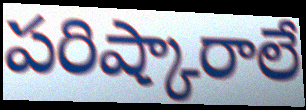
పరిష్కారాలే